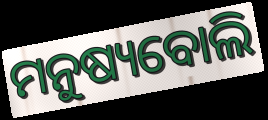
ମନୁଷ୍ୟବୋଲି